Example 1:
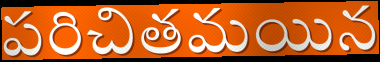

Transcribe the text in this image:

పరిచితమయిన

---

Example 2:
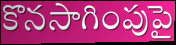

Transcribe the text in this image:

కొనసాగింపుపై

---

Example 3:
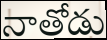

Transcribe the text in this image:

నాతోడు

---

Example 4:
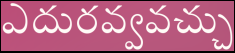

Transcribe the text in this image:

ఎదురవ్వవచ్చు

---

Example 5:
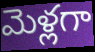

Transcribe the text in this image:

మెళ్లగా